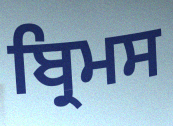
ਬ੍ਰਿਮਸ